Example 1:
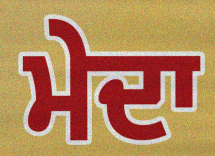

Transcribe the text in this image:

ਮੇਦਾ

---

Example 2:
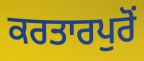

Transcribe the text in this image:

ਕਰਤਾਰਪੁਰੋਂ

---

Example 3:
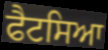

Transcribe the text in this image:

ਫੈਟਸਿਆ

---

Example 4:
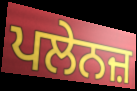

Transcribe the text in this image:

ਪਲੇਨਜ਼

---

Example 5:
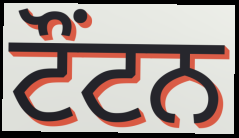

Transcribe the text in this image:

ਟੌਂਟਨ